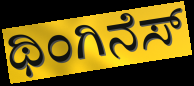
ಥಿಂಗಿನೆಸ್